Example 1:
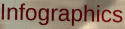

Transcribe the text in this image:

Infographics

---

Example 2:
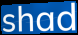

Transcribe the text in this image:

shad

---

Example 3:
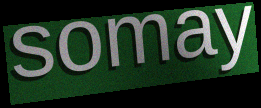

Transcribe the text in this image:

somay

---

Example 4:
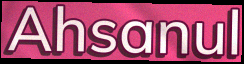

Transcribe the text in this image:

Ahsanul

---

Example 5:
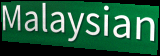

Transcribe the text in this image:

Malaysian